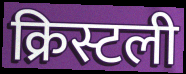
क्रिस्टली